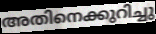
അതിനെക്കുറിച്ചു